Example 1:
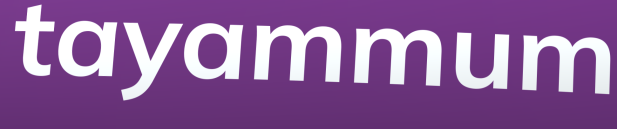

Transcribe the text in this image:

tayammum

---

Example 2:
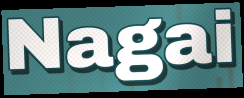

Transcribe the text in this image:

Nagai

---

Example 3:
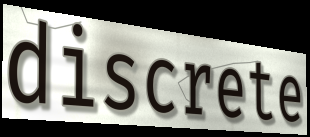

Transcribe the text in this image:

discrete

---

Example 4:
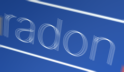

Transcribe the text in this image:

radon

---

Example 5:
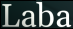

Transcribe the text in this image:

Laba